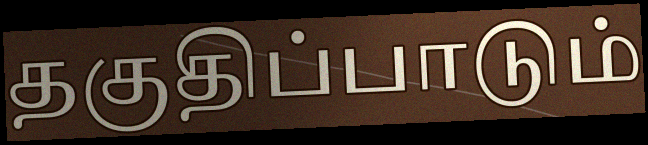
தகுதிப்பாடும்